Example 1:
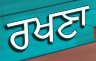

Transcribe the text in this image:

ਰਖਣਾ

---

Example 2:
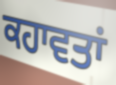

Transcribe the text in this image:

ਕਹਾਵਤਾਂ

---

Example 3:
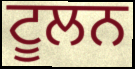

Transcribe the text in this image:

ਟੂਲਨ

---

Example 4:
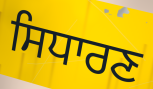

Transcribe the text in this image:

ਸਿਧਾਰਣ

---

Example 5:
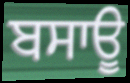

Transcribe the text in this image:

ਬਸਾਊ